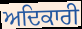
ਅਦਿਕਾਰੀ